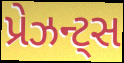
પ્રેઝન્ટ્સ